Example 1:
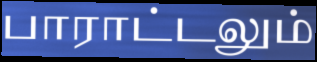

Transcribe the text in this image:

பாராட்டலும்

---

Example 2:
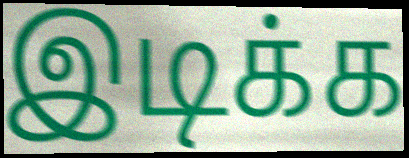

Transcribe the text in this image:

இடிக்க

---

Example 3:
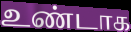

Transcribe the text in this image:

உண்டாக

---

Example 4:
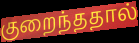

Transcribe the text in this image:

குறைந்ததால்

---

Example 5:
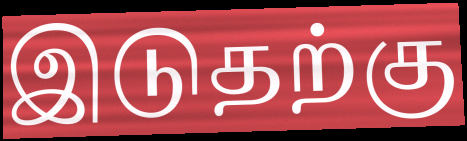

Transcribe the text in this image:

இடுதற்கு